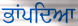
ਭਾਂਪਦਿਆ